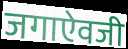
जगाऐवजी